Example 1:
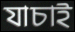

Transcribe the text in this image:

যাচাই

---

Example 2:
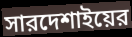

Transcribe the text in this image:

সারদেশাইয়ের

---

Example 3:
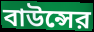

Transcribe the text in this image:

বাউন্সের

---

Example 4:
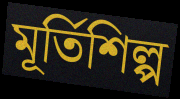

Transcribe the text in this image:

মূর্তিশিল্প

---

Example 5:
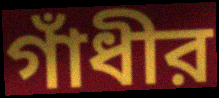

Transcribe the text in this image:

গাঁধীর